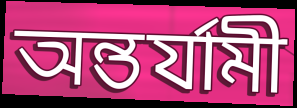
অন্তর্যামী